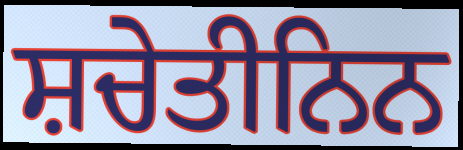
ਸ਼ਚੇਤੀਨਿਨ